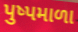
પુષ્પમાળા